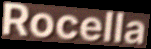
Rocella